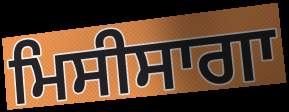
ਮਿਸੀਸਾਗਾ